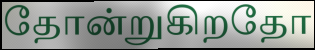
தோன்றுகிறதோ